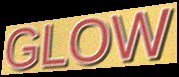
GLOW